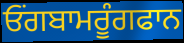
ਓਂਗਬਾਮਰੂੰਗਫਾਨ